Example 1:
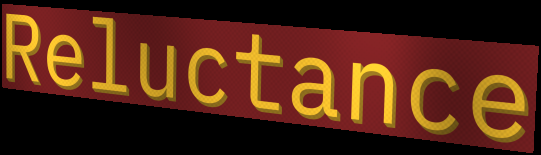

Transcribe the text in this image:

Reluctance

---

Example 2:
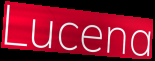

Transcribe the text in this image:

Lucena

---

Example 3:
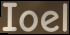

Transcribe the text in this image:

Ioel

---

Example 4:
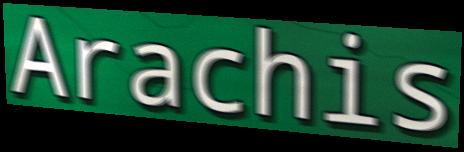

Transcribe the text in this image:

Arachis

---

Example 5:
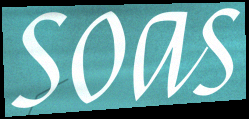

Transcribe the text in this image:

soas